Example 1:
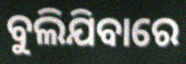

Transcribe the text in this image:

ବୁଲିଯିବାରେ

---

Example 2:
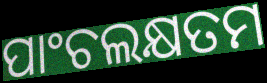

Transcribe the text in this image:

ପାଂଚଲକ୍ଷତମ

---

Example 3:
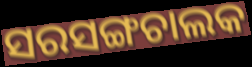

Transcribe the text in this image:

ସରସଙ୍ଗଚାଲକ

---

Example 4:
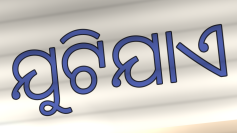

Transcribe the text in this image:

ଯୁଟିଯାଏ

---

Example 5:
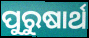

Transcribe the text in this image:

ପୁରୁଷାର୍ଥ